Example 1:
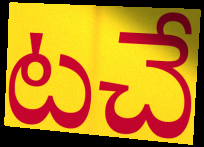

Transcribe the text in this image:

టచే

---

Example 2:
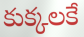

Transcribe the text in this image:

కుక్కలకే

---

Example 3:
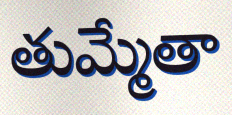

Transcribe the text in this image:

తుమ్మేతా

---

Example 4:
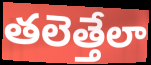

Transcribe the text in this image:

తలెత్తేలా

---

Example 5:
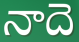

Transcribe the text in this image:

నాదె